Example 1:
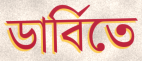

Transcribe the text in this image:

ডার্বিতে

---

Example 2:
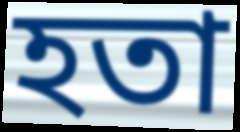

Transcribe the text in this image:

হতা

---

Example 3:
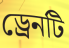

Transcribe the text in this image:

ড্রেনটি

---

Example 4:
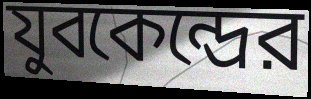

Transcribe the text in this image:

যুবকেন্দ্রের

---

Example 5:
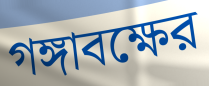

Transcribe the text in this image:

গঙ্গাবক্ষের